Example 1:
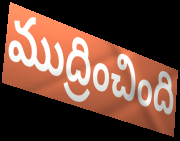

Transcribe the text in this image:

ముద్రించింది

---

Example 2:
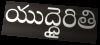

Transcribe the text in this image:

యుద్ధైరితి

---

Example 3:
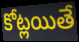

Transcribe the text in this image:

కోట్లయితే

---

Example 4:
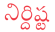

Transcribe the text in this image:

నిర్దిష్ట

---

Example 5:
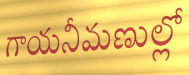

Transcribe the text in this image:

గాయనీమణుల్లో